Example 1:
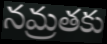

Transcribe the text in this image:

నమ్రతకు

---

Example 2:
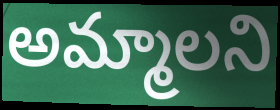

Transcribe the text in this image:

అమ్మాలని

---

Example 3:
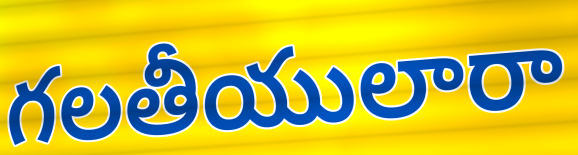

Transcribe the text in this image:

గలతీయులారా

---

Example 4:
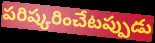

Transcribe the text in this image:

పరిష్కరించేటప్పుడు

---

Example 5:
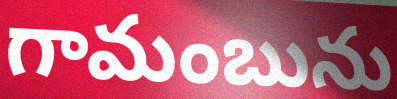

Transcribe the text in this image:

గామంబును